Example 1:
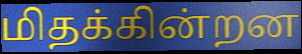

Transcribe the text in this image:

மிதக்கின்றன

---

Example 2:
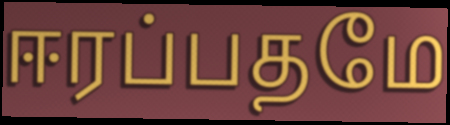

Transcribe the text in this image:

ஈரப்பதமே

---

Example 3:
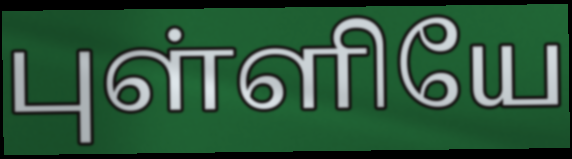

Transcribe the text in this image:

புள்ளியே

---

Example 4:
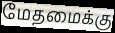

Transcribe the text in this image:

மேதமைக்கு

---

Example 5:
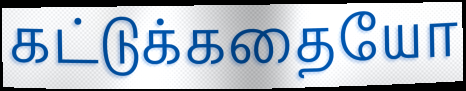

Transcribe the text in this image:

கட்டுக்கதையோ